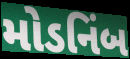
મોડનિંબ